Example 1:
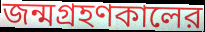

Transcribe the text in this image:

জন্মগ্রহণকালের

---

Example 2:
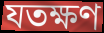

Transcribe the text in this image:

যতক্ষণ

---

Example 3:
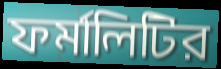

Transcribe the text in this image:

ফর্মালিটির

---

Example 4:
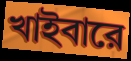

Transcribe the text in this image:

খাইবারে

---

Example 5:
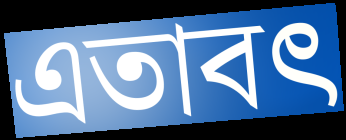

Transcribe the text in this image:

এতাবৎ